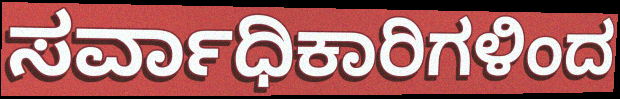
ಸರ್ವಾಧಿಕಾರಿಗಳಿಂದ